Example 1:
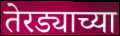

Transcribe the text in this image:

तेरड्याच्या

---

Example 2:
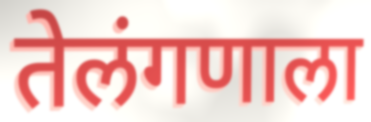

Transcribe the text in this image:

तेलंगणाला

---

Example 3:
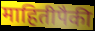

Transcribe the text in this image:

माहितीपैकी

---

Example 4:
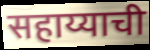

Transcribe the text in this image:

सहाय्याची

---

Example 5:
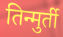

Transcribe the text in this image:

तिन्मुर्ती